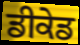
ਡੀਕੇਡ